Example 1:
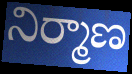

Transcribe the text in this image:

నిర్మాణ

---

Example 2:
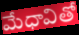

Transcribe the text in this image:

మేధావితో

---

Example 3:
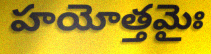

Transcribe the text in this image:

హయోత్తమైః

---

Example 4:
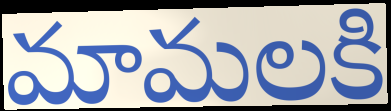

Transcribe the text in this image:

మామలకి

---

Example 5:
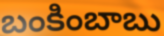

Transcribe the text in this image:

బంకింబాబు